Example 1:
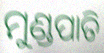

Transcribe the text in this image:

ମୁଣ୍ଡପାତି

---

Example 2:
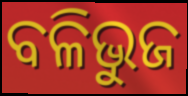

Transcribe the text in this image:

ବଳିଭୁଜ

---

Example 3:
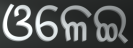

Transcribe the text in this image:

ଓଳେଇ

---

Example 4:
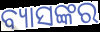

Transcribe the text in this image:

ବ୍ୟାସଙ୍କର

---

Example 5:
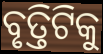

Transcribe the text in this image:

ବୃତ୍ତିଟିକୁ